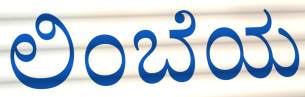
ಲಿಂಬೆಯ